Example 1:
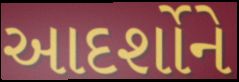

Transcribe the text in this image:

આદર્શોને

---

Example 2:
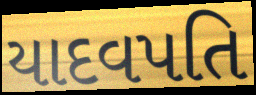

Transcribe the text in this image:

યાદવપતિ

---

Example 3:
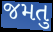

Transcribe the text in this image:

જમતુ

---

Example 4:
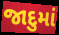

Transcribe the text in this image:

જાદુમાં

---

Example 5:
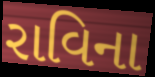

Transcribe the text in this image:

રાવિના